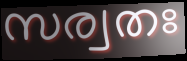
സര്വതഃ